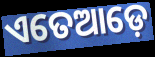
ଏତେଆଡ଼େ